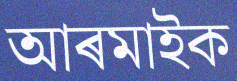
আৰমাইক